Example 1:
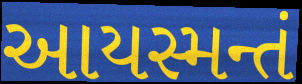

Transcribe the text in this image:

આયસ્મન્તં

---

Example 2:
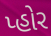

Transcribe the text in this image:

પ્હોર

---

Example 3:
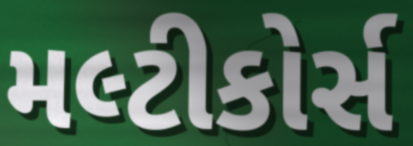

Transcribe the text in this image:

મલ્ટીકોર્સ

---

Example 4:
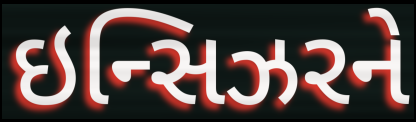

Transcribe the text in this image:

ઇન્સિઝરને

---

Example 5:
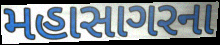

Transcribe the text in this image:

મહાસાગરના